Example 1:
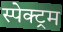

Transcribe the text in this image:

स्पेक्ट्रम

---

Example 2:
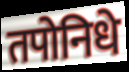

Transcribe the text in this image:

तपोनिधे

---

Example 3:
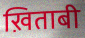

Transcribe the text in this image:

ख़िताबी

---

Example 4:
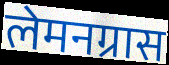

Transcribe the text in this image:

लेमनग्रास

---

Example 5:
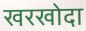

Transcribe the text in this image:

खरखोदा